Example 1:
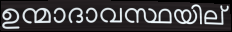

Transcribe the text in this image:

ഉന്മാദാവസ്ഥയില്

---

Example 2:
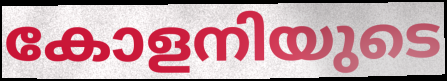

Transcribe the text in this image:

കോളനിയുടെ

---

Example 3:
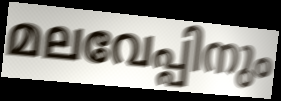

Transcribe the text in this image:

മലവേപ്പിനും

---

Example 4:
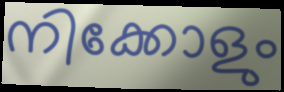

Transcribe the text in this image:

നിക്കോളും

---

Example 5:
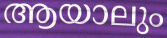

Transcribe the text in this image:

ആയാലും